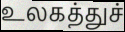
உலகத்துச்